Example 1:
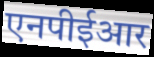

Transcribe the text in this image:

एनपीईआर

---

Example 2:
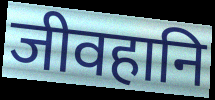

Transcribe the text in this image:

जीवहानि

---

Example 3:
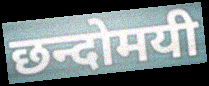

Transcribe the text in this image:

छन्दोमयी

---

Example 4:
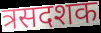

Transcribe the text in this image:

त्रसदशक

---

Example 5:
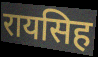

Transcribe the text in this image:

रायसिह